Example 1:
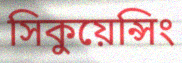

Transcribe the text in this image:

সিকুয়েন্সিং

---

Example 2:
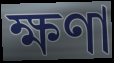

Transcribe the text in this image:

ক্ষণা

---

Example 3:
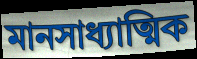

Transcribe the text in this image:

মানসাধ্যাত্মিক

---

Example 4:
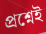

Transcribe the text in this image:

প্রশ্নেই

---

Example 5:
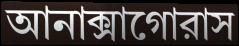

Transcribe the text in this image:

আনাক্সাগোরাস